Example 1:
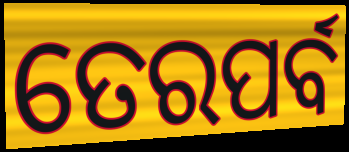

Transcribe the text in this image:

ତେରପର୍ବ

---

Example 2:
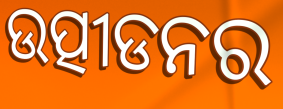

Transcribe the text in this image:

ଉତ୍ପୀଡନର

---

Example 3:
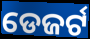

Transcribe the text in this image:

ଡେଜର୍ଟ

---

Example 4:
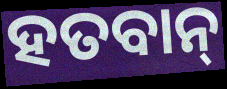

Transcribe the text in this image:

ହତବାନ୍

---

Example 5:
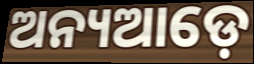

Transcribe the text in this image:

ଅନ୍ୟଆଡ଼େ